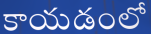
కాయడంలో